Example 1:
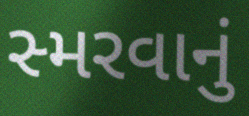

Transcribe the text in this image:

સ્મરવાનું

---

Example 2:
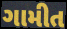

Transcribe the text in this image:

ગામીત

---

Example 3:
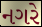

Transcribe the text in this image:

નગરે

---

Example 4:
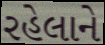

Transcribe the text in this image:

રહેલાને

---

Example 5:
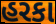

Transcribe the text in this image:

હરકા